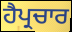
ਹੈਪ੍ਰਚਾਰ